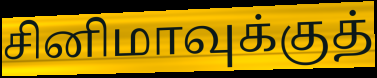
சினிமாவுக்குத்